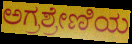
ಅಗ್ರಶ್ರೇಣಿಯ